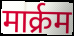
मार्क्रम